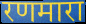
रणमारा